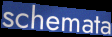
schemata